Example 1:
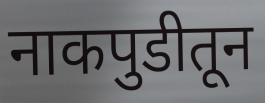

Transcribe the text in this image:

नाकपुडीतून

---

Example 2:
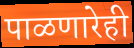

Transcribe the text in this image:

पाळणारेही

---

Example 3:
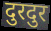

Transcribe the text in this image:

दुरदुर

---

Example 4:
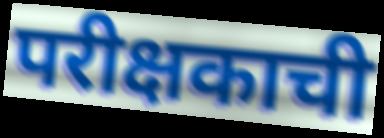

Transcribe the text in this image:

परीक्षकाची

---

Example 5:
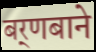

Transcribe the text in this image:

बर्णबाने